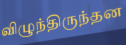
விழுந்திருந்தன